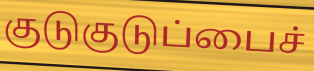
குடுகுடுப்பைச்